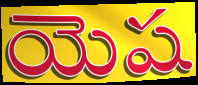
యెష